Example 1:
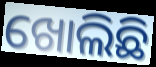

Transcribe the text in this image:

ଖୋଲିଛି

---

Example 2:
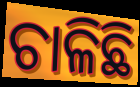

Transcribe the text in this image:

ଚାଳିଛି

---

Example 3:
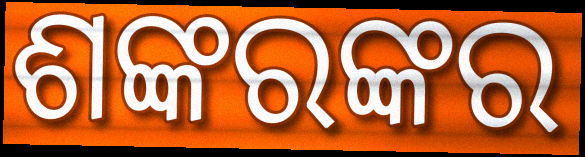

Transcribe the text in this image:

ଶଙ୍କରଙ୍କର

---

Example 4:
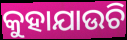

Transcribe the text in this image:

କୁହାଯାଉଚି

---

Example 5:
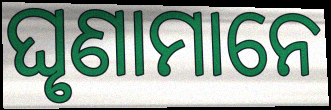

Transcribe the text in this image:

ଘୃଣାମାନେ